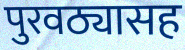
पुरवठ्यासह